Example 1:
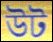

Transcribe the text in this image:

উট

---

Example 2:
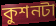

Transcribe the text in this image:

কুশনটা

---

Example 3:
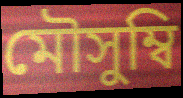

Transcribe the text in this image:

মৌসুম্বি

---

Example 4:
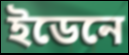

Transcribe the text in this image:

ইডেনে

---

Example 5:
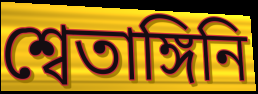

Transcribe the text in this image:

শ্বেতাঙ্গিনি